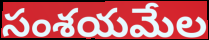
సంశయమేల